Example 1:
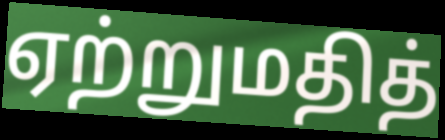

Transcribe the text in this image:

ஏற்றுமதித்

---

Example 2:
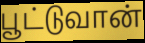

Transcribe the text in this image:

பூட்டுவான்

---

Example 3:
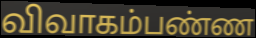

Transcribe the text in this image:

விவாகம்பண்ண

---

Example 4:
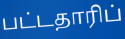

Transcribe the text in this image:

பட்டதாரிப்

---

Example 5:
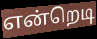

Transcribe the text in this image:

என்றெடி